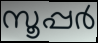
സൂപ്പർ